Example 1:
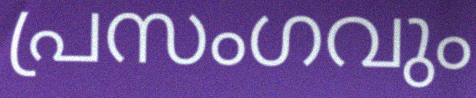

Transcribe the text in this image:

പ്രസംഗവും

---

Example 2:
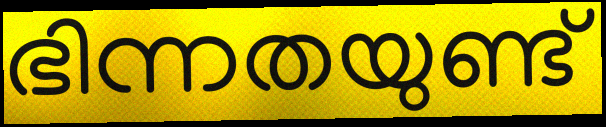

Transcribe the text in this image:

ഭിന്നതയുണ്ട്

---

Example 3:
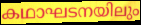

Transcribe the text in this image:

കഥാഘടനയിലും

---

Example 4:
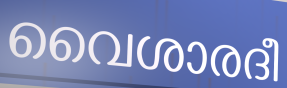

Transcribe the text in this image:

വൈശാരദീ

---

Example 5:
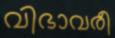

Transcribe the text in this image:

വിഭാവരീ